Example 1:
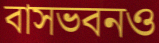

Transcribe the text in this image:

বাসভবনও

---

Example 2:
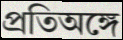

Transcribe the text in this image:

প্রতিঅঙ্গে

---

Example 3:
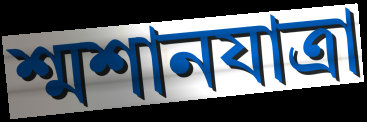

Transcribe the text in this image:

শ্মশানযাত্রা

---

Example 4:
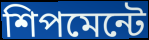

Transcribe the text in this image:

শিপমেন্টে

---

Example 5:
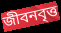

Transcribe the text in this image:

জীবনবৃত্ত